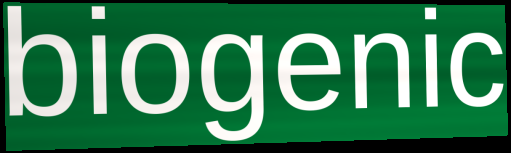
biogenic